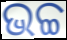
ଭଚ୍ଚ